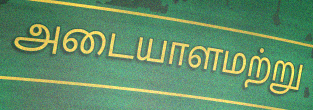
அடையாளமற்று